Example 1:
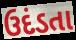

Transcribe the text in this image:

ઉદંડતા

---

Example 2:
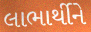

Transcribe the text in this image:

લાભાર્થીને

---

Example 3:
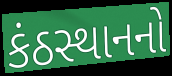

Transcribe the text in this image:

કંઠસ્થાનનો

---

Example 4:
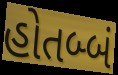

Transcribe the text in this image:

હોતબ્બં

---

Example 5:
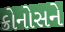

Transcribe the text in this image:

ક્રોનોસને